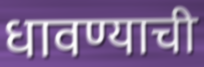
धावण्याची